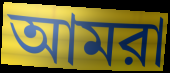
আমরা